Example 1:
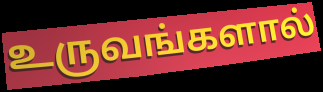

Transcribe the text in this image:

உருவங்களால்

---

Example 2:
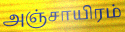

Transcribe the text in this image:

அஞ்சாயிரம்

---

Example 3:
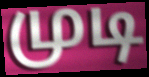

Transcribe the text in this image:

முடி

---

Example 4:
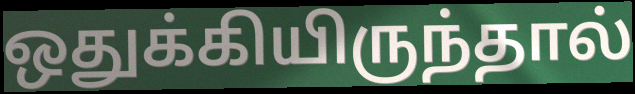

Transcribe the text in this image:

ஒதுக்கியிருந்தால்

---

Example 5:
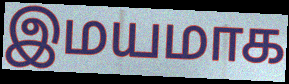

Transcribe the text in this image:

இமயமாக